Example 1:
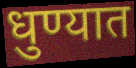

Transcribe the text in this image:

धुण्यात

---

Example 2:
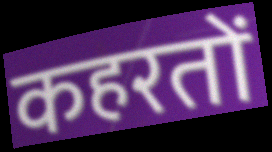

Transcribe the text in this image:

कहरतों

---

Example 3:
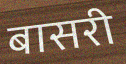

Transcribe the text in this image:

बासरी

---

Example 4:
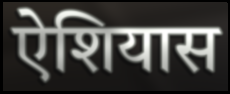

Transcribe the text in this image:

ऐशियास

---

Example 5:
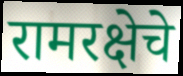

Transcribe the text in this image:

रामरक्षेचे